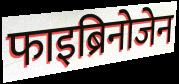
फाइब्रिनोजेन